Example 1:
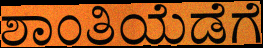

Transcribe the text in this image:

ಶಾಂತಿಯೆಡೆಗೆ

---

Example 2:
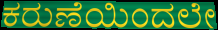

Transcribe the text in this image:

ಕರುಣೆಯಿಂದಲೇ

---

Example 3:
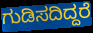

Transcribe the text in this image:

ಗುಡಿಸದಿದ್ದರೆ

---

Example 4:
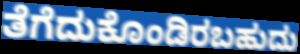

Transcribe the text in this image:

ತೆಗೆದುಕೊಂಡಿರಬಹುದು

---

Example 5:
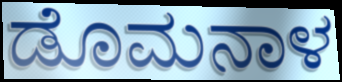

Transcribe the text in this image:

ಡೊಮನಾಳ